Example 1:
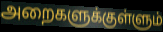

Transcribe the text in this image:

அறைகளுக்குள்ளும்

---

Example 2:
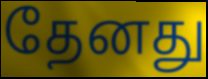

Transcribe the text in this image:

தேனது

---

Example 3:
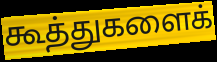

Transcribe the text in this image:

கூத்துகளைக்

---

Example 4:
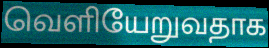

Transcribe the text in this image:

வெளியேறுவதாக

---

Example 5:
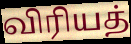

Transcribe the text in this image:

விரியத்